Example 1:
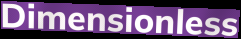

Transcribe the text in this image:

Dimensionless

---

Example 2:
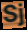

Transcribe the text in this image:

Sj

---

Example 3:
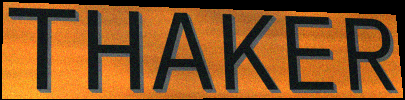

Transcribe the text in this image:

THAKER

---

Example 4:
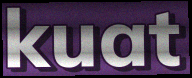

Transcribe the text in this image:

kuat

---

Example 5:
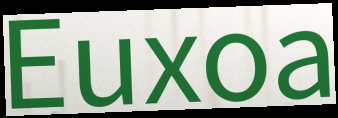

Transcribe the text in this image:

Euxoa